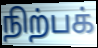
நிற்பக்